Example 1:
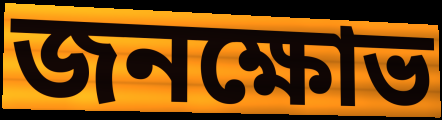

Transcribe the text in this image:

জনক্ষোভ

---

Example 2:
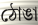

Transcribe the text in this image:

ঠোঙা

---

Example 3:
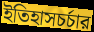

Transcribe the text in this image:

ইতিহাসচর্চার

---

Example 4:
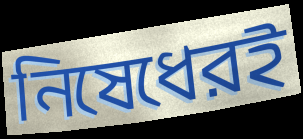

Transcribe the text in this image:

নিষেধেরই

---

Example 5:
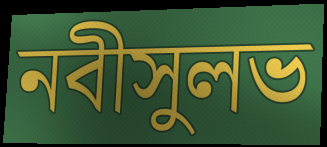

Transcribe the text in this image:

নবীসুলভ